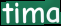
tima